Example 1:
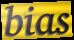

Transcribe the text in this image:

bias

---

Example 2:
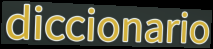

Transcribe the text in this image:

diccionario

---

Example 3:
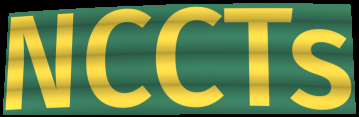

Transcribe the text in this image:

NCCTs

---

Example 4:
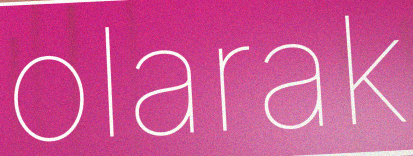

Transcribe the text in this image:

olarak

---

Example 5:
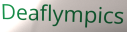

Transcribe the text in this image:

Deaflympics